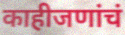
काहीजणांचं